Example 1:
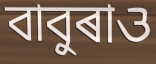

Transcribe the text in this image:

বাবুৰাও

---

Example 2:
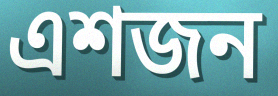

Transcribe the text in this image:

এশজন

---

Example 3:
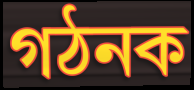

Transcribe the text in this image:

গঠনক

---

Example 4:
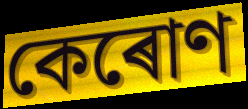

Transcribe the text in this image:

কেৰোণ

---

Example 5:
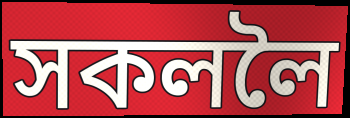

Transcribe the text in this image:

সকললৈ